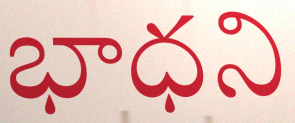
భాధని